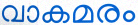
വാകമരം